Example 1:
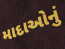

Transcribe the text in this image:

માદાઓનું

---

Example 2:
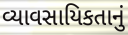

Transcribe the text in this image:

વ્યાવસાયિકતાનું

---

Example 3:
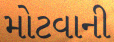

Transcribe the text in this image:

મોટવાની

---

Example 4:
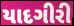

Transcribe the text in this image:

યાદગીરી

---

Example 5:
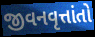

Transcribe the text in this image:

જીવનવૃત્તાંતો